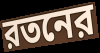
রতনের